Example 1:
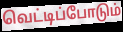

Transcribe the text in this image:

வெட்டிப்போடும்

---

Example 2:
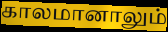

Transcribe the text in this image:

காலமானாலும்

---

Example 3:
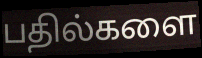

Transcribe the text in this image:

பதில்களை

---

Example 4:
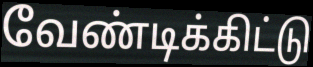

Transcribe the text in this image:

வேண்டிக்கிட்டு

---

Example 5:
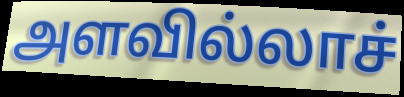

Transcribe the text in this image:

அளவில்லாச்